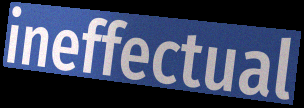
ineffectual